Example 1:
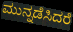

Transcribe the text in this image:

ಮುನ್ನಡೆಸಿದರೆ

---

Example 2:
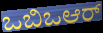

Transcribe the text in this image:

ಒಬಿಒಆರ್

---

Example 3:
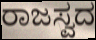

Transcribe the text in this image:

ರಾಜಸ್ವದ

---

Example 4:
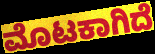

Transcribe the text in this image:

ಮೊಟಕಾಗಿದೆ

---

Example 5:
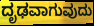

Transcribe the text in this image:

ದೃಢವಾಗುವುದು